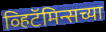
व्हिटॅमिन्सच्या